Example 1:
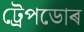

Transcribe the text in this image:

ট্ৰেপডোৰ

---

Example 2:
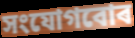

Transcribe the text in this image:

সংযোগবোৰ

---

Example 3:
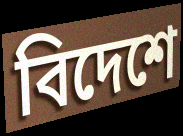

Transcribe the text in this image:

বিদেশে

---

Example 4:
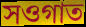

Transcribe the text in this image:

সওগাত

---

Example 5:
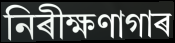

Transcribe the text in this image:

নিৰীক্ষণাগাৰ